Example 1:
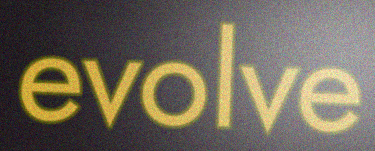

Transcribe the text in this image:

evolve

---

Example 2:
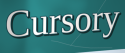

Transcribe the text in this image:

Cursory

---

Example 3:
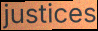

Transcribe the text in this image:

justices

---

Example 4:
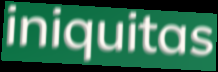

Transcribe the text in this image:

iniquitas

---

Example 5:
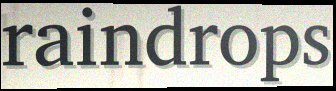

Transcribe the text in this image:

raindrops